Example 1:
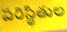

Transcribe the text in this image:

పరిస్థితుల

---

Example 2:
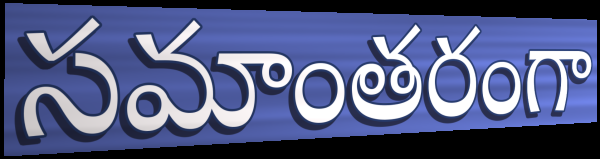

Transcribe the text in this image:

సమాంతరంగా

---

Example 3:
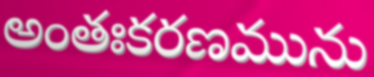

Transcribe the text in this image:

అంతఃకరణమును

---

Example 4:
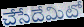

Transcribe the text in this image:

చేసేదేమిటో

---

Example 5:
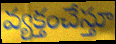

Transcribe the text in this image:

వ్యక్తంచేస్తూ